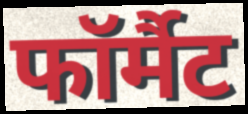
फॉर्मैट